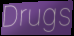
Drugs